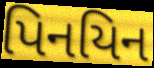
પિનયિન